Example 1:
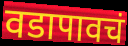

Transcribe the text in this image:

वडापावचं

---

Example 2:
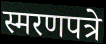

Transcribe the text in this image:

स्मरणपत्रे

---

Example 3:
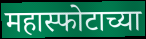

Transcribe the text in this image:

महास्फोटाच्या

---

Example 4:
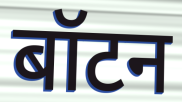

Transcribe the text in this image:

बॉटन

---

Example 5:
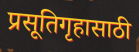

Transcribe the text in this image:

प्रसूतिगृहासाठी